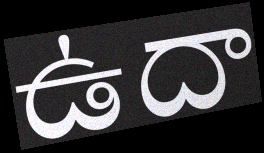
ఉదా